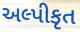
અલ્પીકૃત